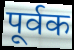
पूर्वक